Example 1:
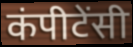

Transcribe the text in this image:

कंपीटेंसी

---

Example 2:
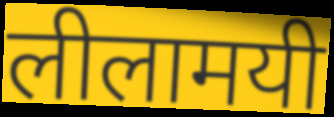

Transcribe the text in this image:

लीलामयी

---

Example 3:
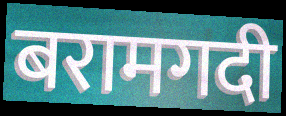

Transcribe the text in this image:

बरामगदी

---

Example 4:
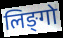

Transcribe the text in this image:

लिङ्गो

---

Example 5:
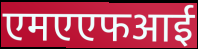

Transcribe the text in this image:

एमएएफआई